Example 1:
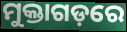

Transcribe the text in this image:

ମୁକ୍ତାଗଡ଼ରେ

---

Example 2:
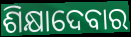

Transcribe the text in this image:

ଶିକ୍ଷାଦେବାର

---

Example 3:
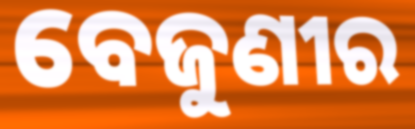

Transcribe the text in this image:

ବେଜୁଣୀର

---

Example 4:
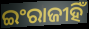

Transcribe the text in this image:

ଇଂରାଜୀହିଁ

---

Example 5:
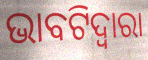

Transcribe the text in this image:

ଭାବଟିଦ୍ୱାରା